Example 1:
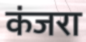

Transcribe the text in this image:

कंजरा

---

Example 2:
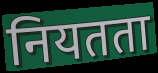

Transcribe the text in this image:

नियतता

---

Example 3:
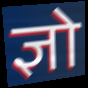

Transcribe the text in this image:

ज्ञो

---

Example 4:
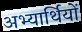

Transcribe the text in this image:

अभ्‍यार्थियों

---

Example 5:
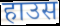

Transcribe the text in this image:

हाउस